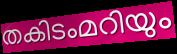
തകിടംമറിയും